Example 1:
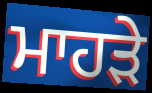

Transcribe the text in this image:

ਮਾਹੜੇ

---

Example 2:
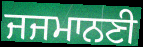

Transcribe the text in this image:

ਜਜਮਾਨਣੀ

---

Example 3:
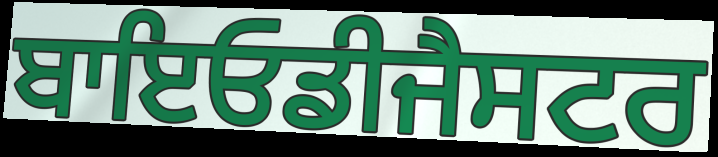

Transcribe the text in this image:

ਬਾਇਓਡੀਜੈਸਟਰ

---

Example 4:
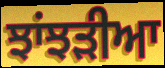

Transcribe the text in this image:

ਝਾਂਝੜੀਆ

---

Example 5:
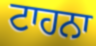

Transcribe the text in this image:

ਟਾਹਨਾ